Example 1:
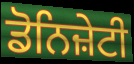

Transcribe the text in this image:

ਡੋਨਿਜ਼ੇਟੀ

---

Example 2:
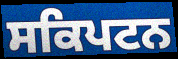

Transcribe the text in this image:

ਸਕਿਪਟਨ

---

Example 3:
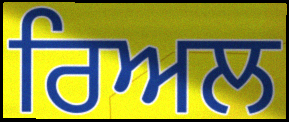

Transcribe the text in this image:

ਰਿਅਲ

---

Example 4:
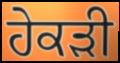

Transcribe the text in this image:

ਹੇਕੜੀ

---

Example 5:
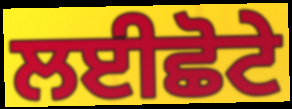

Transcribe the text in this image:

ਲਈਛੋਟੇ